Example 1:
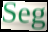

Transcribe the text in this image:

Seg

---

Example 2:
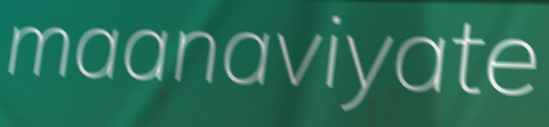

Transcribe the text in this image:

maanaviyate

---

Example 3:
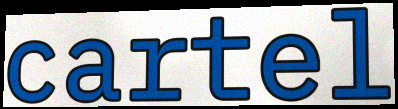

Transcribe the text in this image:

cartel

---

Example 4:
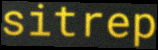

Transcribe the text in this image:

sitrep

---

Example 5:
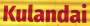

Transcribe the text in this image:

Kulandai